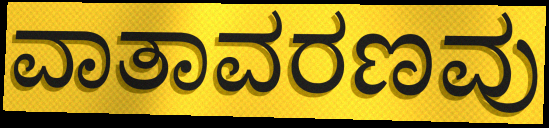
ವಾತಾವರಣವು